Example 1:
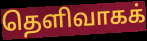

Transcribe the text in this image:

தெளிவாகக்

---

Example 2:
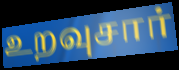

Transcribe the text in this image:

உறவுசார்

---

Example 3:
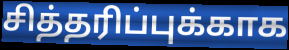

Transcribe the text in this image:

சித்தரிப்புக்காக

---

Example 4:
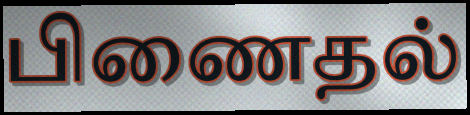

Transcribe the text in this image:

பிணைதல்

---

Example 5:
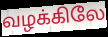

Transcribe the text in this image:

வழக்கிலே